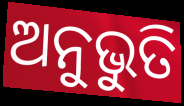
ଅନୁଭୁତି